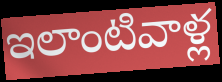
ఇలాంటివాళ్ల